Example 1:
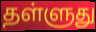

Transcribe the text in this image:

தள்ளுது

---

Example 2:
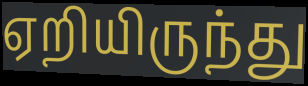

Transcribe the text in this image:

ஏறியிருந்து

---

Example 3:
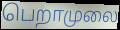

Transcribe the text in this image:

பெறாமுலை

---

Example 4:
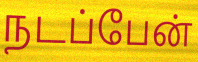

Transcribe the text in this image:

நடப்பேன்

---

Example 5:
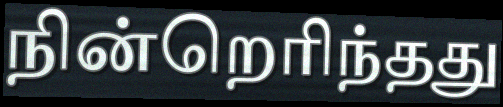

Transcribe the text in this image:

நின்றெரிந்தது